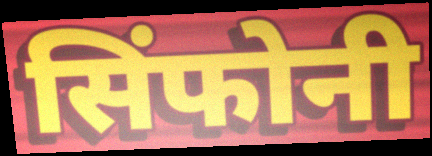
सिंफोनी